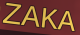
ZAKA